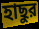
হাছুর